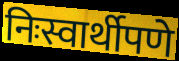
निःस्वार्थीपणे